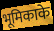
भूमिकाके